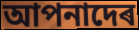
আপনাদেৰ